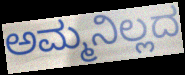
ಅಮ್ಮನಿಲ್ಲದ